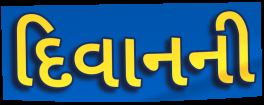
દિવાનની